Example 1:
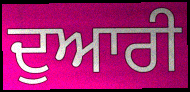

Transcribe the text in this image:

ਦੁਆਰੀ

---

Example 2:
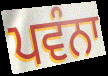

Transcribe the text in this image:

ਪਵੰਨਾ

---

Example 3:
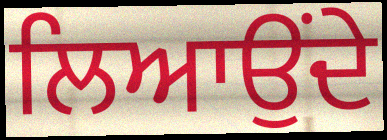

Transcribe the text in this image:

ਲਿਆਉਂਦੇ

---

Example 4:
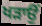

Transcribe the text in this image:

ਖੜਾਉਂ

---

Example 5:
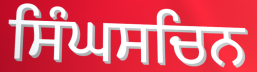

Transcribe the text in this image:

ਸਿੰਘਸਚਿਨ